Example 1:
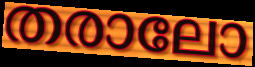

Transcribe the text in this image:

തരാലോ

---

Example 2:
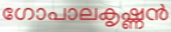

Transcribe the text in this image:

ഗോപാലകൃഷ്ണൻ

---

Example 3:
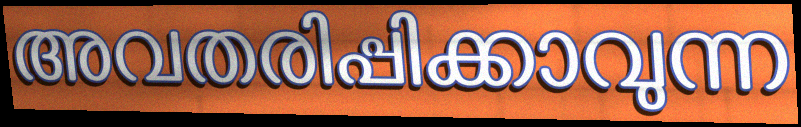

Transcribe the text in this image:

അവതരിപ്പിക്കാവുന്ന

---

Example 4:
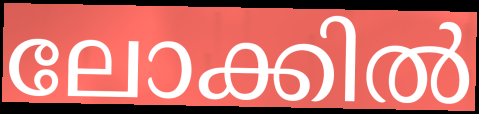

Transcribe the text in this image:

ലോക്കിൽ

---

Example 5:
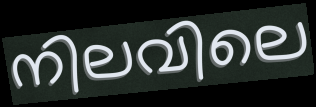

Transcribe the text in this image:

നിലവിലെ